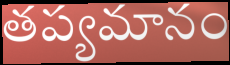
తప్యమానం